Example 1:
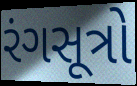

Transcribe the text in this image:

રંગસૂત્રો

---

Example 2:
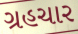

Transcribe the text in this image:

ગ્રહચાર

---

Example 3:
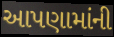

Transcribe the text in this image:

આપણામાંની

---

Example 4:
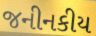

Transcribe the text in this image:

જનીનકીય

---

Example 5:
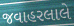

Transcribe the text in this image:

જવાહરલાલે